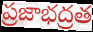
ప్రజాభద్రత